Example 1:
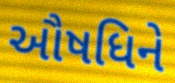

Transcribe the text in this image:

ઔષધિને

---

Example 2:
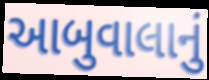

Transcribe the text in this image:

આબુવાલાનું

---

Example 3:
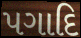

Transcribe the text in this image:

પગાદિ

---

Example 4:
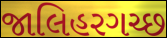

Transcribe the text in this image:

જાલિહરગચ્છ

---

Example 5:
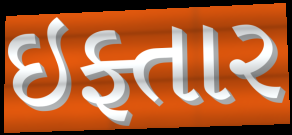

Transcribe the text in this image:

ઇફ્તાર